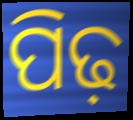
ପିଢ଼